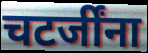
चटर्जींना